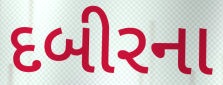
દબીરના